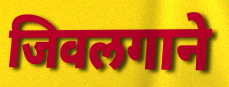
जिवलगाने